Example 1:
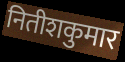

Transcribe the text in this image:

नितीशकुमार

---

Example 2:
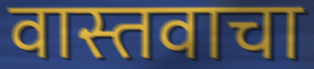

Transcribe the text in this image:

वास्तवाचा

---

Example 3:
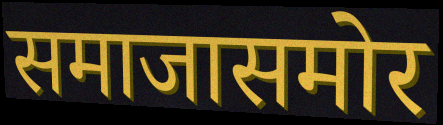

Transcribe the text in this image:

समाजासमोर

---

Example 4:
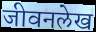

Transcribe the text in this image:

जीवनलेख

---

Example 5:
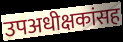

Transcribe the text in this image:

उपअधीक्षकांसह